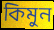
কিমুন